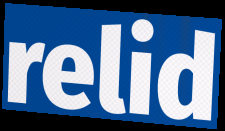
relid